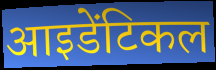
आइडेंटिकल